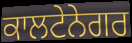
ਕਾਲਟੇਨੇਗਰ